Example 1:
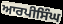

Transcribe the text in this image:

ਆਰਪੀਸਿੰਘ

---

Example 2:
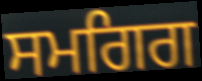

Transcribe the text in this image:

ਸਮਗਿਗ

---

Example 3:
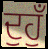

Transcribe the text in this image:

ਦੁਹੁਁ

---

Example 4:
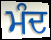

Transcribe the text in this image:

ਮੰਦ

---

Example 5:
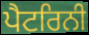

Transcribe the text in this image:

ਪੈਟਰਿਨੀ